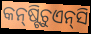
କନ୍‍ଷ୍ଟିଚୁଏନ୍‍ସି